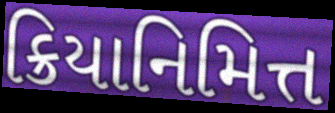
ક્રિયાનિમિત્ત